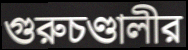
গুরুচণ্ডালীর